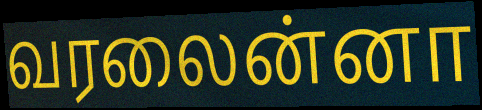
வரலைன்னா